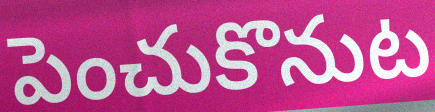
పెంచుకొనుట